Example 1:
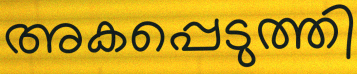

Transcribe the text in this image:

അകപ്പെടുത്തി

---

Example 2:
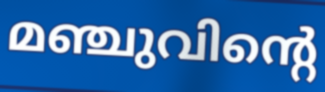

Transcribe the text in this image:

മഞ്ചുവിന്റെ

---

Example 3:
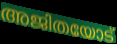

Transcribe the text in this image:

അജിതയോട്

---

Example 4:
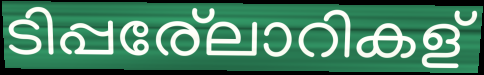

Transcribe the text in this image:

ടിപ്പര്ലോറികള്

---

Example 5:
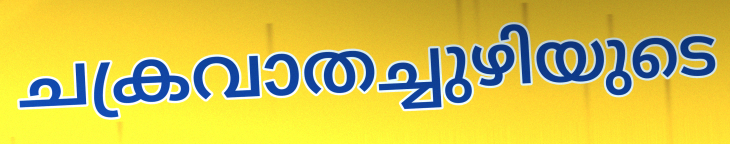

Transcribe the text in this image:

ചക്രവാതച്ചുഴിയുടെ